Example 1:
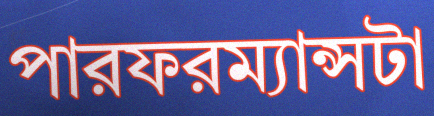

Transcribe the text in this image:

পারফরম্যান্সটা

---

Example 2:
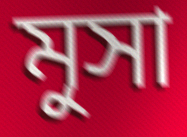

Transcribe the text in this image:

মুসা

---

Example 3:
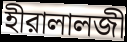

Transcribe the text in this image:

হীরালালজী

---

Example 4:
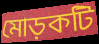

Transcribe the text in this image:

মোড়কটি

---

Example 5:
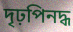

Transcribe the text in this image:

দৃঢ়পিনদ্ধ